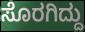
ಸೊರಗಿದ್ದು